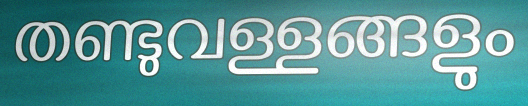
തണ്ടുവള്ളങ്ങളും